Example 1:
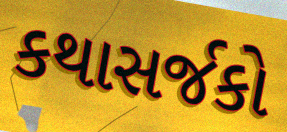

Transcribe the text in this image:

કથાસર્જકો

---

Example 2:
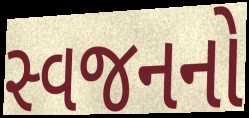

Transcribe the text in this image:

સ્વજનનો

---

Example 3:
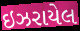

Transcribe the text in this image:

ઇઝરાયેલ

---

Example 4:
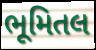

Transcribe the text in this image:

ભૂમિતલ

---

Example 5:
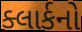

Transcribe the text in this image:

ક્લાર્કનો